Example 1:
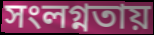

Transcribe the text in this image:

সংলগ্নতায়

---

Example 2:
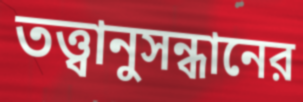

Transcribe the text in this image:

তত্ত্বানুসন্ধানের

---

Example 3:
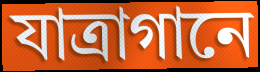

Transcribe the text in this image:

যাত্রাগানে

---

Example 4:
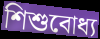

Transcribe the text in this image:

শিশুবোধ্য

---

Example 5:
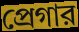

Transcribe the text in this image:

প্রেগার